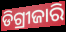
ଡିଗ୍ରୀଜାରି